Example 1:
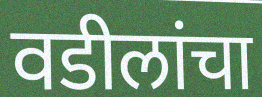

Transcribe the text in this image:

वडीलांचा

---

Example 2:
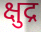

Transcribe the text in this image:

क्षुद्र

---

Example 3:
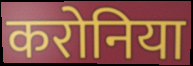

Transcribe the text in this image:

करोनिया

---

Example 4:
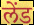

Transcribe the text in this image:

लेंड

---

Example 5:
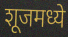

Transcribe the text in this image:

शूजमध्ये